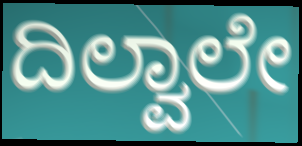
ದಿಲ್ವಾಲೇ